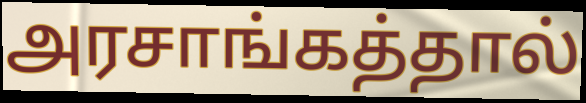
அரசாங்கத்தால்